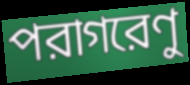
পরাগরেণু